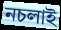
নচলাই